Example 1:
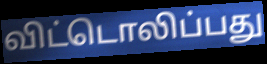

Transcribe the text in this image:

விட்டொலிப்பது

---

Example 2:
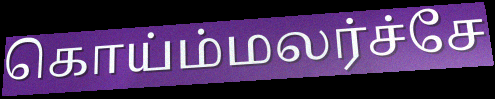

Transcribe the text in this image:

கொய்ம்மலர்ச்சே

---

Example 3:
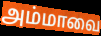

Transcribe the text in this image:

அம்மாவை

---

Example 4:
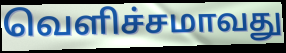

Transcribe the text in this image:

வெளிச்சமாவது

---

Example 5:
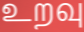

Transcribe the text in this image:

உறவு